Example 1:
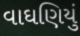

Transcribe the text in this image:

વાઘણિયું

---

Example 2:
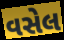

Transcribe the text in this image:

વસેલ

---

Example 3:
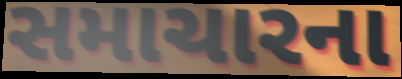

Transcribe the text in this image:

સમાચારના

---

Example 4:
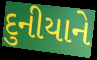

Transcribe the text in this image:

દુનીયાને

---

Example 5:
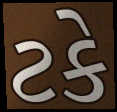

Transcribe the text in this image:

ટકે